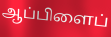
ஆப்பிளைப்